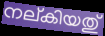
നല്കിയതു്